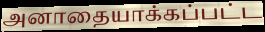
அனாதையாக்கப்பட்ட